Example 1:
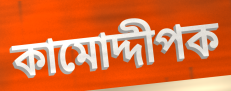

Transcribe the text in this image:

কামোদ্দীপক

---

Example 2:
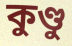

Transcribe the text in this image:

কুণ্ডু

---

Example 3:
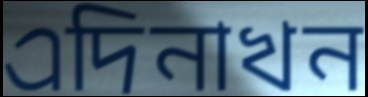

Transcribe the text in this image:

এদিনাখন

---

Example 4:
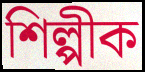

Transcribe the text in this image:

শিল্পীক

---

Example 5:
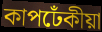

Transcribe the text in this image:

কাপঢেঁকীয়া